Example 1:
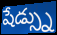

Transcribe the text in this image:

షేడ్స్ను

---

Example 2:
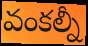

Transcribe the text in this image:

వంకల్నీ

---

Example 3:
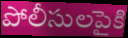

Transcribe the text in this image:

పోలీసులపైకి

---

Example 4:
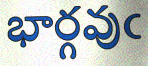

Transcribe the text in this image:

భార్గవుఁ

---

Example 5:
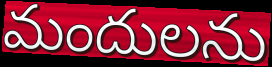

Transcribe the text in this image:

మందులను